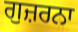
ਗੁਜ਼ਰਨਾ